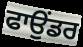
ਫਾਉਂਡਰ